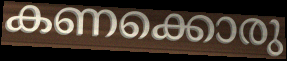
കണക്കൊരു